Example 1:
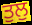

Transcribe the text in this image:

ਤੁਲੁ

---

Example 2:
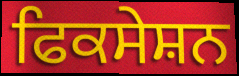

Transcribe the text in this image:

ਫਿਕਸੇਸ਼ਨ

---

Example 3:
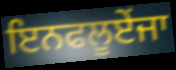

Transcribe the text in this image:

ਇਨਫਲੂਏਂਜਾ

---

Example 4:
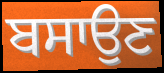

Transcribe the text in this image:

ਬਸਾਉਣ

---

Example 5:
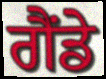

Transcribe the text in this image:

ਗੈਂਡੇ